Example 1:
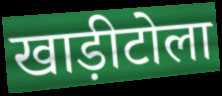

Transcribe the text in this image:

खाड़ीटोला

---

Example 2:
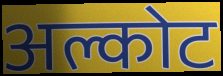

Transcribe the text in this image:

अल्कोट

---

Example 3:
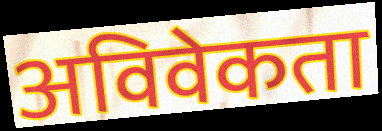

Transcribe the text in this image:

अविवेकता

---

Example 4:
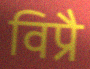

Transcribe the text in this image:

विप्रै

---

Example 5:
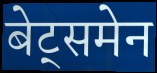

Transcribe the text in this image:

बेट्समेन